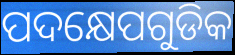
ପଦକ୍ଷେପଗୁଡିକ